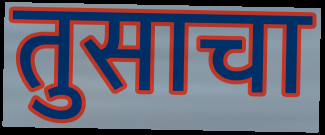
तुसाचा